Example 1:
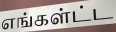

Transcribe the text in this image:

எங்கள்ட்ட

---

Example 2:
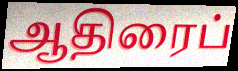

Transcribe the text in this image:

ஆதிரைப்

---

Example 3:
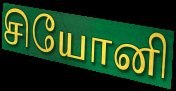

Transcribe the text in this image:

சியோனி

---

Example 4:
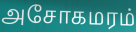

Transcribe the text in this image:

அசோகமரம்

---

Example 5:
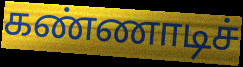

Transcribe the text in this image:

கண்ணாடிச்